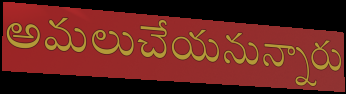
అమలుచేయనున్నారు